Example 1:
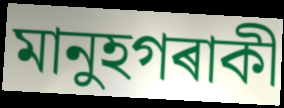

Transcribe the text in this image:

মানুহগৰাকী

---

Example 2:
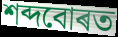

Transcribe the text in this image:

শব্দবোৰত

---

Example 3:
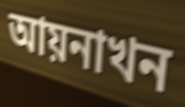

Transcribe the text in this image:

আয়নাখন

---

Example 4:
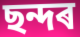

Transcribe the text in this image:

ছন্দৰ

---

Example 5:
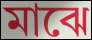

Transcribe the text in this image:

মাঝে